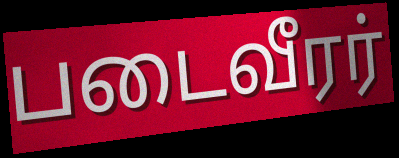
படைவீரர்